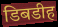
डिबडीह